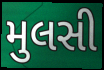
મુલસી